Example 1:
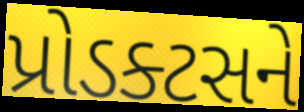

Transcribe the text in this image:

પ્રોડક્ટસને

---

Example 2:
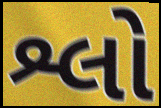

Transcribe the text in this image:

શ્લો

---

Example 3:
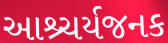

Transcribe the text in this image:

આશ્ર્ચર્યજનક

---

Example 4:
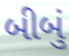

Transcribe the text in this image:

બીબું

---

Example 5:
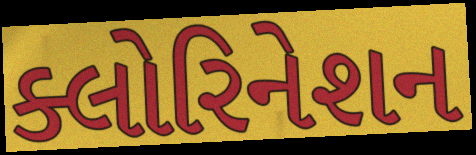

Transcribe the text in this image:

ક્લોરિનેશન